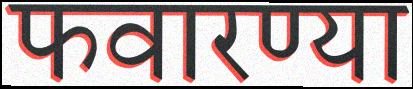
फवारण्या